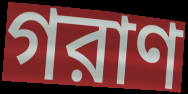
গরাণ